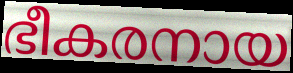
ഭീകരനായ